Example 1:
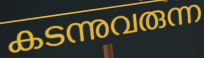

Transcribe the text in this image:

കടന്നുവരുന്ന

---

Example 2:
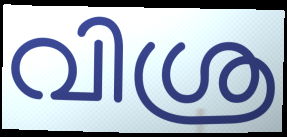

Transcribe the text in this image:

വിശ്ര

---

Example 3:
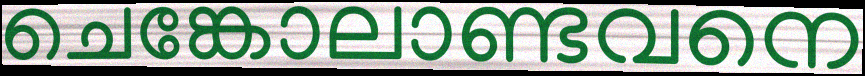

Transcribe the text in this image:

ചെങ്കോലാണ്ടവനെ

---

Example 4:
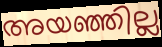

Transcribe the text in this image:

അയഞ്ഞില്ല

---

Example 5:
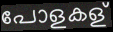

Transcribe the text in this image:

പോളകള്